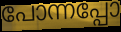
പോന്നപ്പോ